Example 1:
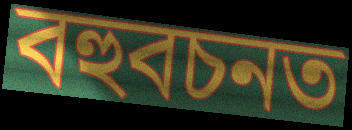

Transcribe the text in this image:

বহুবচনত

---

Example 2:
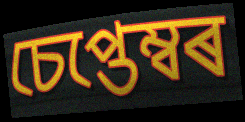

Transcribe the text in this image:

চেপ্তেম্বৰ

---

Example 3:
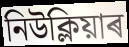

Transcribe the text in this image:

নিউক্লিয়াৰ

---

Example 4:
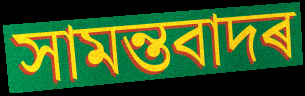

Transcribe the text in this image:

সামন্তবাদৰ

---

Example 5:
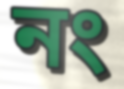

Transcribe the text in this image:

নং